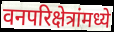
वनपरिक्षेत्रांमध्ये